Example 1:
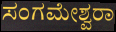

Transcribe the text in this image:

ಸಂಗಮೇಶ್ವರಾ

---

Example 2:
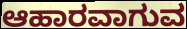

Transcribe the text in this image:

ಆಹಾರವಾಗುವ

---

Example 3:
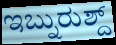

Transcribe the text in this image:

ಇಬ್ನುರುಶ್ದ್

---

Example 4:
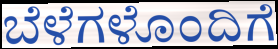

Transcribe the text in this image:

ಬೆಳೆಗಳೊಂದಿಗೆ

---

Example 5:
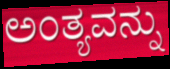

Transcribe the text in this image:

ಅಂತ್ಯವನ್ನು